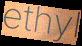
ethyl